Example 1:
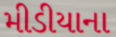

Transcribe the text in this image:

મીડીયાના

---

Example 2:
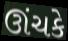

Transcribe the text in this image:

ઊંચકે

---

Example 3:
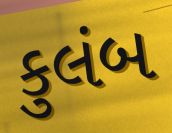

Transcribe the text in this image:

કુલંબ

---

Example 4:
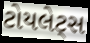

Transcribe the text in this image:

ટોયલેટ્સ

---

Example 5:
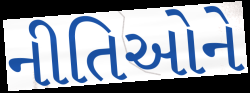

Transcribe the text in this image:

નીતિઓને